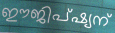
ഈജിപ്ഷ്യന്